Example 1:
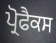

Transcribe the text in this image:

ਪ੍ਰੋਫੈਕਸ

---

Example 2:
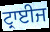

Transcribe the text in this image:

ਟ੍ਰਾਈਜ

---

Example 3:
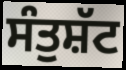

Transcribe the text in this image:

ਸੰਤੁਸ਼ੱਟ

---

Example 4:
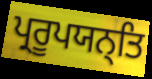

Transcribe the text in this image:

ਪ੍ਰਰੂਪਯਨ੍ਤਿ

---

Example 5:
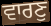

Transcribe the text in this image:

ਵਾਰਣੁ